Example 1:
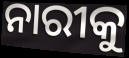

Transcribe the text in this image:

ନାରୀକୁ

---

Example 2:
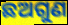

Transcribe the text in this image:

ଛଅଗୁଣ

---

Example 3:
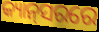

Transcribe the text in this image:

କ୍ୟାନ୍‌ସରରେ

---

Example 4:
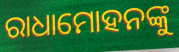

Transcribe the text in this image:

ରାଧାମୋହନଙ୍କୁ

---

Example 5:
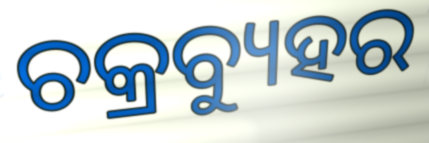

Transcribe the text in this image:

ଚକ୍ରବ୍ୟୁହର